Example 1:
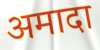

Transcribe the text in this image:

अमादा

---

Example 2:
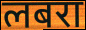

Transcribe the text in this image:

लबरा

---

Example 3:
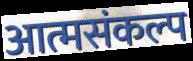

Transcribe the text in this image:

आत्मसंकल्प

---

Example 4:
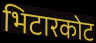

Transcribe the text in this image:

भिटारकोट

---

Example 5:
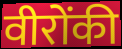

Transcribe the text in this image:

वीरोंकी